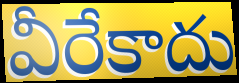
వీరేకాదు